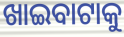
ଖାଇବାଟାକୁ